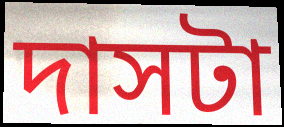
দাসটা